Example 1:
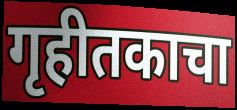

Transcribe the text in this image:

गृहीतकाचा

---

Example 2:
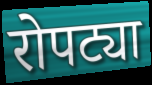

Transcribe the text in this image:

रोपट्या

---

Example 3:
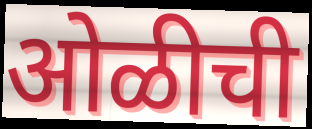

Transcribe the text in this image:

ओळीची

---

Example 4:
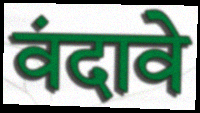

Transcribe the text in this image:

वंदावे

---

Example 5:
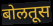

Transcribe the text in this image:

बोलतूस